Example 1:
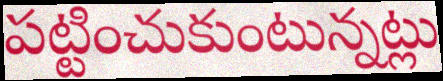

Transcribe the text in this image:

పట్టించుకుంటున్నట్లు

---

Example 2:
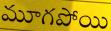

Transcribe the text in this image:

మూగపోయి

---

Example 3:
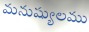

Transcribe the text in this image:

మనుష్యులము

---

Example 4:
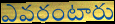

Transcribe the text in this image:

ఎవరంటారు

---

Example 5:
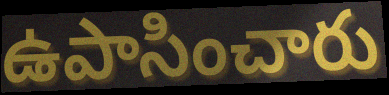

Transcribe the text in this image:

ఉపాసించారు